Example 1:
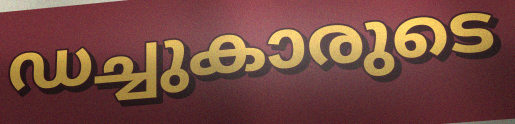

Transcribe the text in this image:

ഡച്ചുകാരുടെ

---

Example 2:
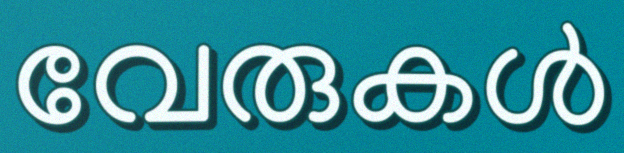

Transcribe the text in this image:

വേരുകൾ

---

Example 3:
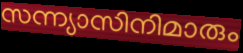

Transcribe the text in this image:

സന്ന്യാസിനിമാരും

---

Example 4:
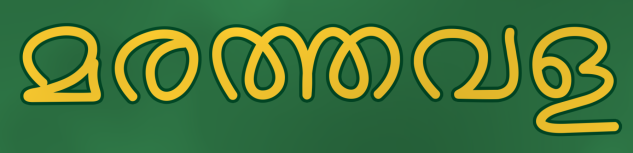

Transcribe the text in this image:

മരത്തവള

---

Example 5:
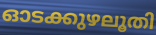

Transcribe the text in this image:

ഓടക്കുഴലൂതി